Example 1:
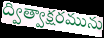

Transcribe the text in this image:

ద్విత్వాక్షరమును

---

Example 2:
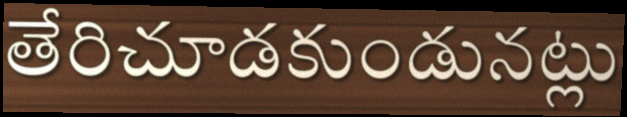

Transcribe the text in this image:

తేరిచూడకుండునట్లు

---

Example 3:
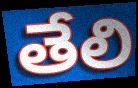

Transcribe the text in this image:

తేలి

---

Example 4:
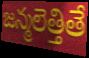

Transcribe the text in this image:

జన్మలెత్తితే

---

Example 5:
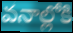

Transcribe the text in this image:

వనాల్లోకి